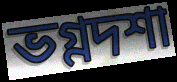
ভগ্নদশা